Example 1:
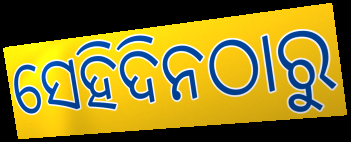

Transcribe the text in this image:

ସେହିଦିନଠାରୁ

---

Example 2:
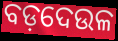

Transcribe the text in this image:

ବଡ଼ଦେଉଳ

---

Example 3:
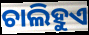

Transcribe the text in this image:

ଚାଲିହୁଏ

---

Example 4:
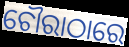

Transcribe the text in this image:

ଚୌରାଠାରେ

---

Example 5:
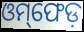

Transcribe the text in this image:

ଓମ୍‌ଫେଡ଼